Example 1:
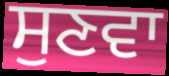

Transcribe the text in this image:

ਸੁਣਵਾ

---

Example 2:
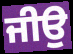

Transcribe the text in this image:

ਜੀਉ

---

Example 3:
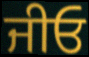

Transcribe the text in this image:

ਜੀਓ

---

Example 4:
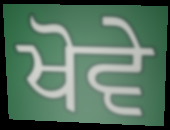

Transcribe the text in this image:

ਖੋਵੇ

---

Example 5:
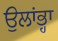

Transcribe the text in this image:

ਉਲਾਂਭ੍ਹਾ